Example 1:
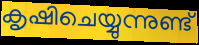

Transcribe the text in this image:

കൃഷിചെയ്യുന്നുണ്ട്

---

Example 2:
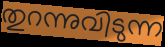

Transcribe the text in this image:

തുറന്നുവിടുന്ന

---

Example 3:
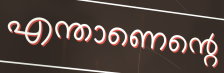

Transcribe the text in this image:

എന്താണെന്റെ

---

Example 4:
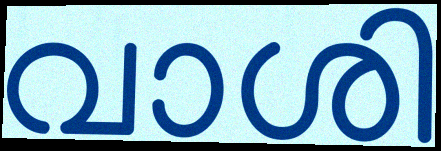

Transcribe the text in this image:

വാശി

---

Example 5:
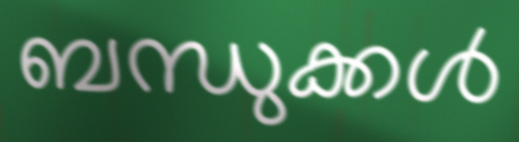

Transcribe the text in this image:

ബന്ധുക്കൾ